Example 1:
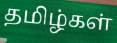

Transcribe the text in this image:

தமிழ்கள்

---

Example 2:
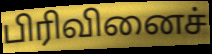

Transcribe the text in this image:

பிரிவினைச்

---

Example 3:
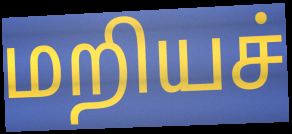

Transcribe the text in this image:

மறியச்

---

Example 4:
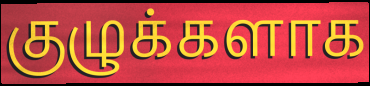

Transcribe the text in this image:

குழுக்களாக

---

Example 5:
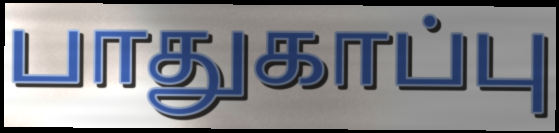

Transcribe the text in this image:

பாதுகாப்பு